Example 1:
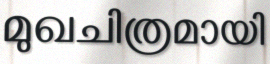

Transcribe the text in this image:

മുഖചിത്രമായി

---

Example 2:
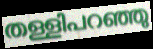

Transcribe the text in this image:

തള്ളിപറഞ്ഞു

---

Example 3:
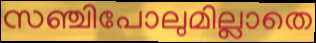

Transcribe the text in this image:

സഞ്ചിപോലുമില്ലാതെ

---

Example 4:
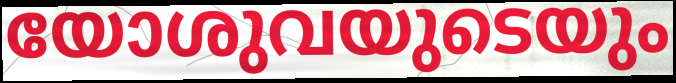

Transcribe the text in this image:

യോശുവയുടെയും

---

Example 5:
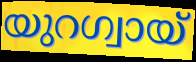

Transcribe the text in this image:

യുറഗ്വായ്